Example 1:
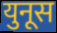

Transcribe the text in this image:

युनूस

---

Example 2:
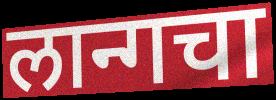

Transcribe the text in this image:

लान्गचा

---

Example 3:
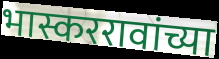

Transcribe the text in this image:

भास्कररावांच्या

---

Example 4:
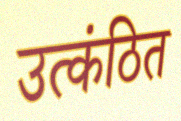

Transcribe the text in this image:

उत्कंठित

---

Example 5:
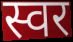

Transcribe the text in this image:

स्वर